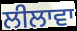
ਲੀਲਾਵਾ